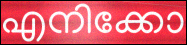
എനിക്കോ